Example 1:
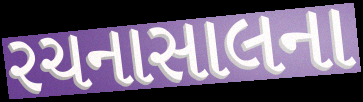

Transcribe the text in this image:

રચનાસાલના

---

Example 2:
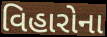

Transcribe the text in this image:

વિહારોના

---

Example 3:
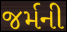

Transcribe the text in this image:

જર્મની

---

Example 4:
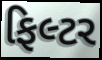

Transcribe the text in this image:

ફિલ્ટર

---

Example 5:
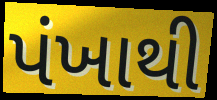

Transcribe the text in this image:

પંખાથી